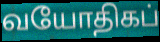
வயோதிகப்